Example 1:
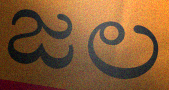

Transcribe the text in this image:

జల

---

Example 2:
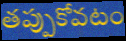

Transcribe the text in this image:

తప్పుకోవటం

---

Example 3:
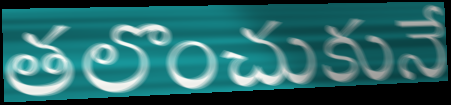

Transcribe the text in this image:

తలొంచుకునే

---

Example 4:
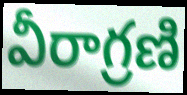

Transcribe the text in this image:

వీరాగ్రణి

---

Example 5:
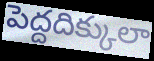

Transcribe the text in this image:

పెద్దదిక్కులా